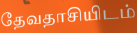
தேவதாசியிடம்